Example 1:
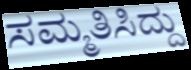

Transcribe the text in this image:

ಸಮ್ಮತಿಸಿದ್ದು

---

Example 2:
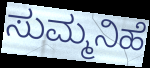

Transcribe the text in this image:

ಸುಮ್ಮನಿಹೆ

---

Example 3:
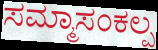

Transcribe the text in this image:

ಸಮ್ಮಾಸಂಕಲ್ಪ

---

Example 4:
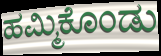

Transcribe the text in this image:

ಹಮ್ಮಿಕೊಂಡು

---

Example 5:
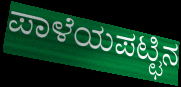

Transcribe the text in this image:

ಪಾಳೆಯಪಟ್ಟಿನ